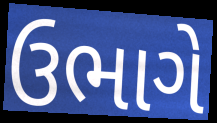
ઉભાગે